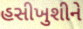
હસીખુશીને